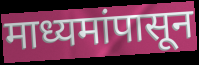
माध्यमांपासून